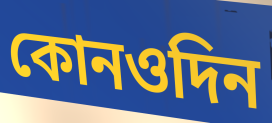
কোনওদিন